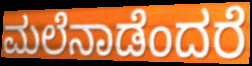
ಮಲೆನಾಡೆಂದರೆ